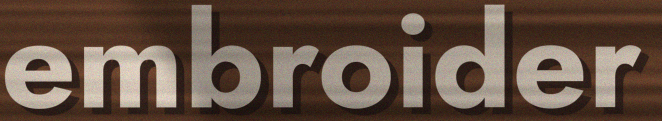
embroider